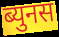
ब्युनस